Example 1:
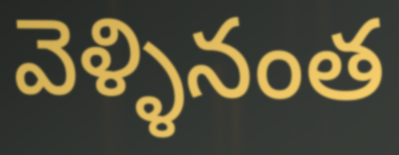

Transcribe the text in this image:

వెళ్ళినంత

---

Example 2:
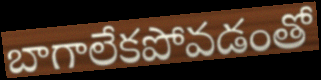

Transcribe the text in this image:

బాగాలేకపోవడంతో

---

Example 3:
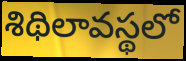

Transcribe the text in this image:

శిథిలావస్థలో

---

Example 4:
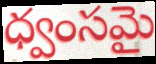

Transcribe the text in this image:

ధ్వంసమై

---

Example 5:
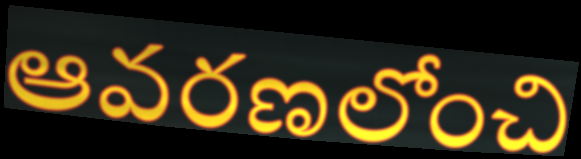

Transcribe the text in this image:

ఆవరణలోంచి